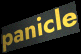
panicle